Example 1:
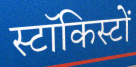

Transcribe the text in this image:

स्टॉकिस्टों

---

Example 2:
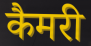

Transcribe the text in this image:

कैमरी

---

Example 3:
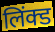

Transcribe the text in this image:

लिंक्ड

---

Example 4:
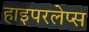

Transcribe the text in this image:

हाइपरलेप्स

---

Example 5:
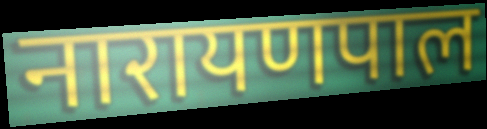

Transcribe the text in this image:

नारायणपाल